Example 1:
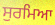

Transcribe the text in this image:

ਸੁਰਮਿਆ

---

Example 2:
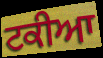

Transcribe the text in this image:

ਟਕੀਆ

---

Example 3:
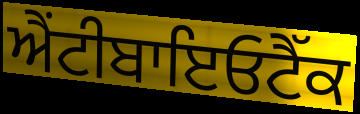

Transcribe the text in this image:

ਐਂਟੀਬਾਇਓਟੈੱਕ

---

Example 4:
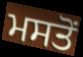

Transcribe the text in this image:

ਮਸਤੋਂ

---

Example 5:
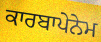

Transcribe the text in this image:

ਕਾਰਬਾਪੇਨੇਮ